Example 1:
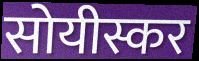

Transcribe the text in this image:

सोयीस्कर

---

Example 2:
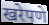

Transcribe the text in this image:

खरेपणे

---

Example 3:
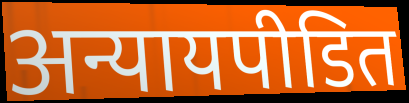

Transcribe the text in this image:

अन्यायपीडित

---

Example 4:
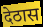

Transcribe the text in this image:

देठास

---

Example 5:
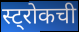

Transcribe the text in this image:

स्ट्रोकची